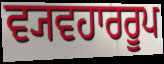
ਵ੍ਯਵਹਾਰਰੂਪ